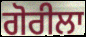
ਗੋਰੀਲਾ